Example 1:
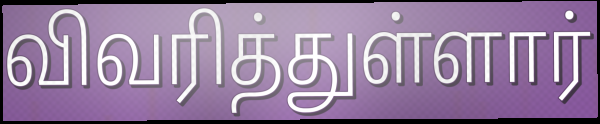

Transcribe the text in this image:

விவரித்துள்ளார்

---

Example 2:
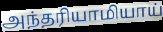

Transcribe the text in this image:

அந்தரியாமியாய்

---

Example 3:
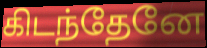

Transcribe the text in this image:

கிடந்தேனே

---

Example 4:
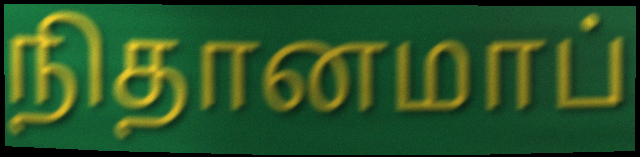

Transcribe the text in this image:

நிதானமாப்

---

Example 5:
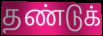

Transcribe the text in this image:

தண்டுக்